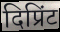
दिप्रिंट